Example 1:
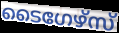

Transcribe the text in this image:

ടൈഗേഴ്സ്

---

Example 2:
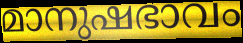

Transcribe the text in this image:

മാനുഷഭാവം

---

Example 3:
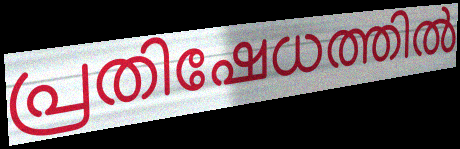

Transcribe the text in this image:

പ്രതിഷേധത്തിൽ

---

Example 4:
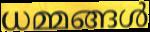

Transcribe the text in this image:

ധമ്മങ്ങൾ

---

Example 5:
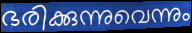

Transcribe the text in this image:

ഭരിക്കുന്നുവെന്നും